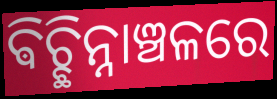
ଵିଚ୍ଛିନ୍ନାଞ୍ଚଳରେ